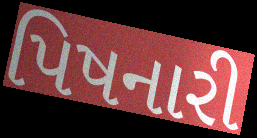
પિષનારી